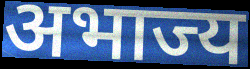
अभाज्य